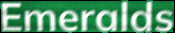
Emeralds